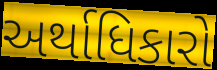
અર્થાધિકારો